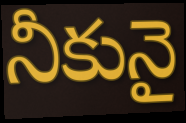
నీకునై